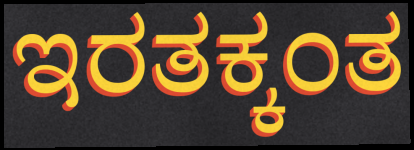
ಇರತಕ್ಕಂತ